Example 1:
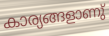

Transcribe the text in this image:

കാര്യങ്ങളാണു്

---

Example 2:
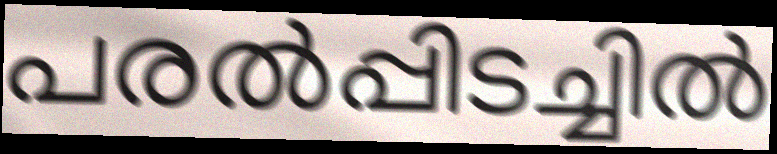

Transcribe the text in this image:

പരൽപ്പിടച്ചിൽ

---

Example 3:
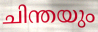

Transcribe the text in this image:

ചിന്തയും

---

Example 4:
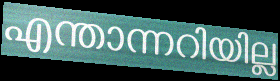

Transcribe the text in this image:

എന്താന്നറിയില്ല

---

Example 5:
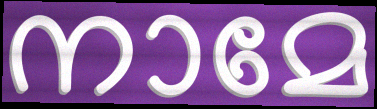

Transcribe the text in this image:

നാമേ